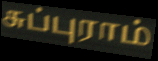
சுப்புராம்